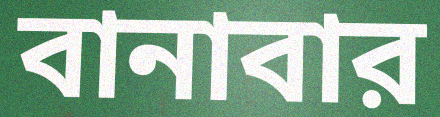
বানাবার